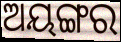
ଅୟଙ୍ଗର